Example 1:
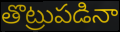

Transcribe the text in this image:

తొట్రుపడినా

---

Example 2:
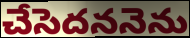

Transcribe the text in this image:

చేసెదననెను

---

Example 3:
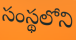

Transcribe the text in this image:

సంస్థలోని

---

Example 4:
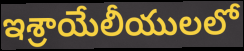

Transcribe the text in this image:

ఇశ్రాయేలీయులలో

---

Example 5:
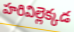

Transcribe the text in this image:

హరివిల్లెక్కడ